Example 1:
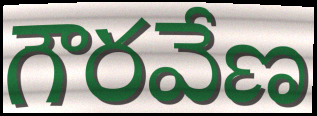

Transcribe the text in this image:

గౌరవేణ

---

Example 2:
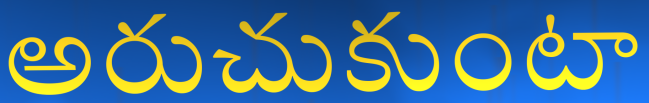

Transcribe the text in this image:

అరుచుకుంటా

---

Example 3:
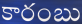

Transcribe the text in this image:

కారంబు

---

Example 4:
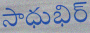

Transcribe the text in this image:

సాధుభిర్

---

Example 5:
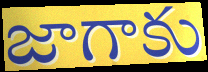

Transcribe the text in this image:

జాగాకు